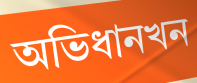
অভিধানখন